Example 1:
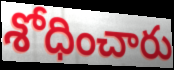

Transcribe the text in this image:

శోధించారు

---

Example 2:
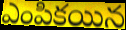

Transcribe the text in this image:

ఎంపికయిన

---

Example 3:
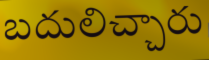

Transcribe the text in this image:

బదులిచ్చారు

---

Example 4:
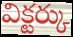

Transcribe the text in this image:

విక్టర్కు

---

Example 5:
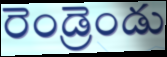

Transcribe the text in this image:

రెండ్రెండు